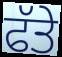
ਫੱਤੇ